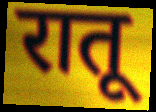
रातू